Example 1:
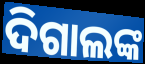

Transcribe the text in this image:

ଦିଗାଲଙ୍କ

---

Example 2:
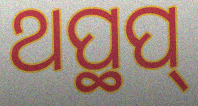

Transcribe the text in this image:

ଥପ୍ଥପ୍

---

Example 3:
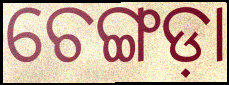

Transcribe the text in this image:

ଚେଙ୍ଗଡ଼ା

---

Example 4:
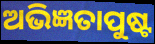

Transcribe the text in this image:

ଅଭିଜ୍ଞତାପୁଷ୍ଟ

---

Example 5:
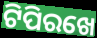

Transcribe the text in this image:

ଟିପିରଖେ